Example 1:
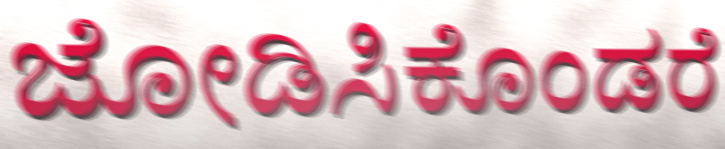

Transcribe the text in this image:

ಜೋಡಿಸಿಕೊಂಡರೆ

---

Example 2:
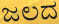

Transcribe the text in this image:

ಜಲದ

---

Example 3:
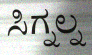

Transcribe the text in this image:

ಸಿಗ್ನಲ್ನ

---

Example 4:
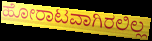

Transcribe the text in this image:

ಹೋರಾಟವಾಗಿರಲಿಲ್ಲ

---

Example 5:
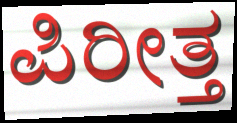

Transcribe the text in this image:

ಪಿರೀತ್ತ